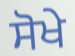
ਸੋਖੇ